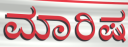
ಮಾರಿಷ